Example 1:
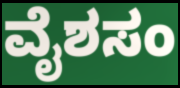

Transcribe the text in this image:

ವೈಶಸಂ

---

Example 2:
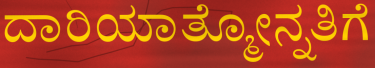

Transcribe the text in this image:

ದಾರಿಯಾತ್ಮೋನ್ನತಿಗೆ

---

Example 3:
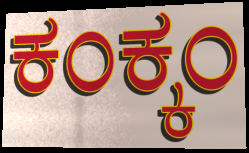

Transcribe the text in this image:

ಕಂಕ್ಕಂ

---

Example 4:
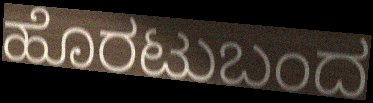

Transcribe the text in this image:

ಹೊರಟುಬಂದ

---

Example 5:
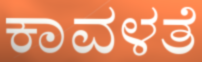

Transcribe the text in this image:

ಕಾವಳತೆ